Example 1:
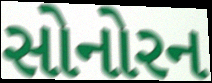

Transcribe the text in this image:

સોનોરન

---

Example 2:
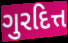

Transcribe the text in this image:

ગુરદિત્ત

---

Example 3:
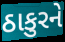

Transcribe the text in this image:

ઠાકુરને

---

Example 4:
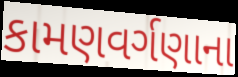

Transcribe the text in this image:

કામણવર્ગણાના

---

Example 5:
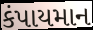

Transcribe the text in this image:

કંપાયમાન